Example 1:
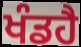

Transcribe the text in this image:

ਖੰਡਹੈ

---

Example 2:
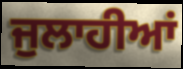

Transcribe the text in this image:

ਜੁਲਾਹੀਆਂ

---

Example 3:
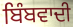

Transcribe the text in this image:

ਬਿੰਬਵਾਦੀ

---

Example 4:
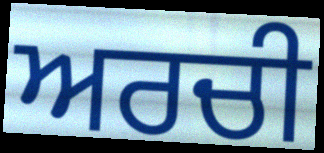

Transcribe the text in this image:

ਅਰਚੀ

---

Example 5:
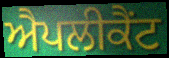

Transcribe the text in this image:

ਐਪਲੀਕੈਂਟ